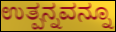
ಉತ್ಪನ್ನವನ್ನೂ